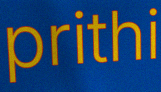
prithi